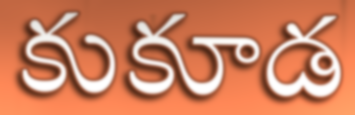
కుకూడ